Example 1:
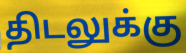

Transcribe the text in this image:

திடலுக்கு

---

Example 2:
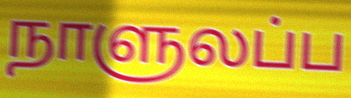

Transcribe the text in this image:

நாளுலப்ப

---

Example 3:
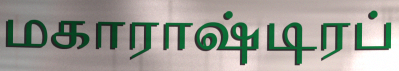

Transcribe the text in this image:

மகாராஷ்டிரப்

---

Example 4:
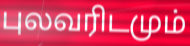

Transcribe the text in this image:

புலவரிடமும்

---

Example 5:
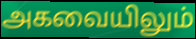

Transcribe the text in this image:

அகவையிலும்